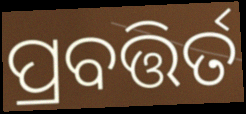
ପ୍ରବତ୍ତିର୍ତ